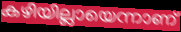
കഴിയില്ലായെന്നാണ്